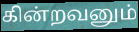
கின்றவனும்